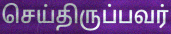
செய்திருப்பவர்